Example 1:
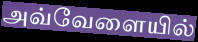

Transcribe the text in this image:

அவ்வேளையில்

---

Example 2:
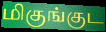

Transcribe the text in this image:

மிகுங்குட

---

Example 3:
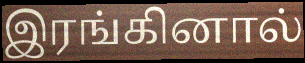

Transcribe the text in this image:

இரங்கினால்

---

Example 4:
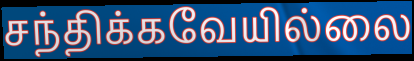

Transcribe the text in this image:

சந்திக்கவேயில்லை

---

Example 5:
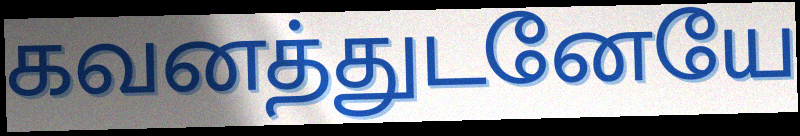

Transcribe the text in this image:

கவனத்துடனேயே